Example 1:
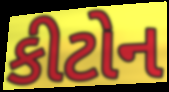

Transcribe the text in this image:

કીટોન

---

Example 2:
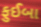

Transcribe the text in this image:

ફુઈબા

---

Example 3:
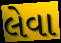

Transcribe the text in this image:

લેવા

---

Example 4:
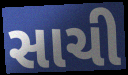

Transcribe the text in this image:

સાચી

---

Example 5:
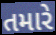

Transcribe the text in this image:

તમારે